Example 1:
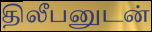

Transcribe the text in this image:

திலீபனுடன்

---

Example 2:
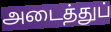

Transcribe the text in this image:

அடைத்துப்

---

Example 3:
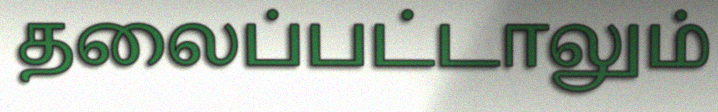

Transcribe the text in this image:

தலைப்பட்டாலும்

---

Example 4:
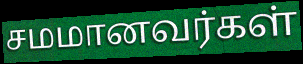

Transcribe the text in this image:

சமமானவர்கள்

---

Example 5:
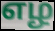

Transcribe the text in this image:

எழ